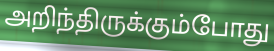
அறிந்திருக்கும்போது